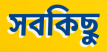
সবকিছু